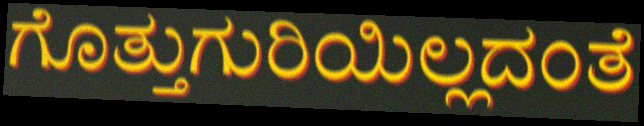
ಗೊತ್ತುಗುರಿಯಿಲ್ಲದಂತೆ